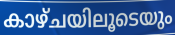
കാഴ്ചയിലൂടെയും